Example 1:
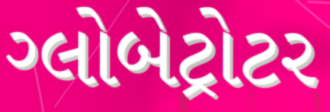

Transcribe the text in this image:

ગ્લોબેટ્રોટર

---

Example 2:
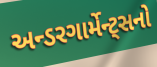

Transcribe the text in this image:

અન્ડરગાર્મેન્ટ્સનો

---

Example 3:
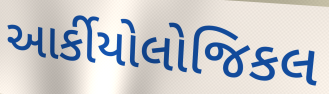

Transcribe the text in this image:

આર્કીયોલોજિકલ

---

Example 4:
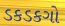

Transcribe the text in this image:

ડકડકગો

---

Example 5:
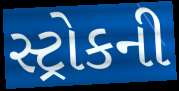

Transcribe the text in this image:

સ્ટ્રોકની